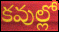
కవుల్లో